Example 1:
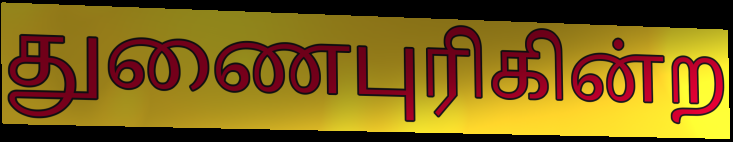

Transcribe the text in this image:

துணைபுரிகின்ற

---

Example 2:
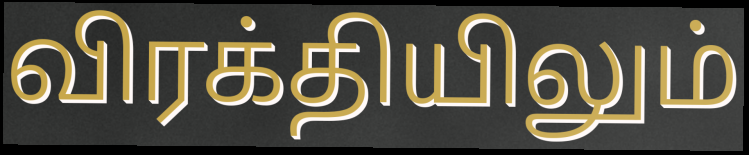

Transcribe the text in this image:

விரக்தியிலும்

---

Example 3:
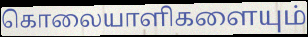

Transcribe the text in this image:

கொலையாளிகளையும்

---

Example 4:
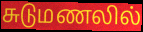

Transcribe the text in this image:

சுடுமணலில்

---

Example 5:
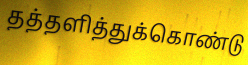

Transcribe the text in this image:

தத்தளித்துக்கொண்டு